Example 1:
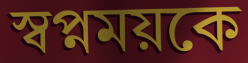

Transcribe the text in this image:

স্বপ্নময়কে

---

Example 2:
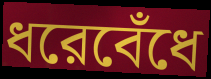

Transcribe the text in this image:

ধরেবেঁধে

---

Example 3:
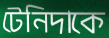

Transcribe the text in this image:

টেনিদাকে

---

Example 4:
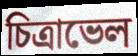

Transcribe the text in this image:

চিত্রাভেল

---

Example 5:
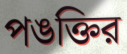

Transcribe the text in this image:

পঙক্তির